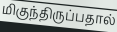
மிகுந்திருப்பதால்